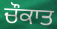
ਚੌਕਾਤ